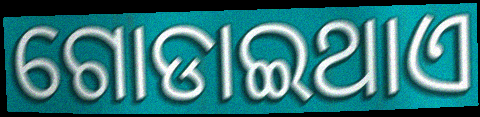
ଗୋଡାଇଥାଏ